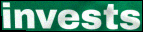
invests